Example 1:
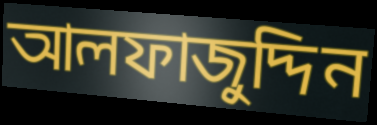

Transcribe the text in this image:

আলফাজুদ্দিন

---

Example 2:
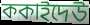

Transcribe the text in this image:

ককাইদেউ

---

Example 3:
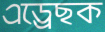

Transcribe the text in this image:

এড্ৰেছক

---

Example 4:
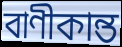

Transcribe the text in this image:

বাণীকান্ত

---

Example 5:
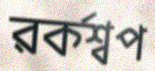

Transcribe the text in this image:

ৱৰ্কশ্বপ